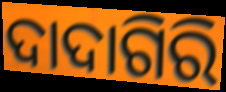
ଦାଦାଗିରି